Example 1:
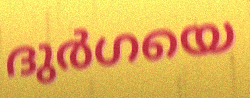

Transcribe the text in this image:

ദുർഗയെ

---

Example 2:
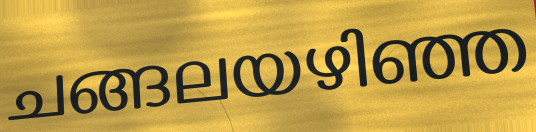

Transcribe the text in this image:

ചങ്ങലയഴിഞ്ഞ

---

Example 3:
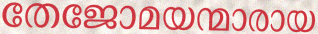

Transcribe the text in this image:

തേജോമയന്മാരായ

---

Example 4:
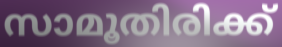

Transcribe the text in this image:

സാമൂതിരിക്ക്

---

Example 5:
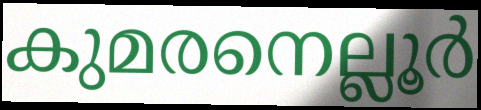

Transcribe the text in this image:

കുമരനെല്ലൂർ